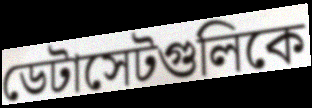
ডেটাসেটগুলিকে